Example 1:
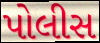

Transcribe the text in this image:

પોલીસ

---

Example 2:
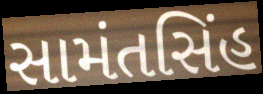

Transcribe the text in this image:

સામંતસિંહ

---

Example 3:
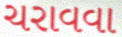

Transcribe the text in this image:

ચરાવવા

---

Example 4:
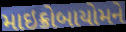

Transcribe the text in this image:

માઇક્રોબાયોમને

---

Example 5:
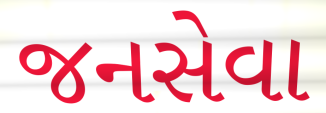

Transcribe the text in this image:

જનસેવા